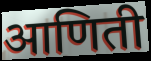
आणिती